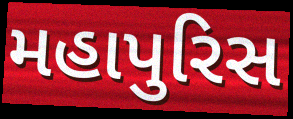
મહાપુરિસ